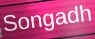
Songadh